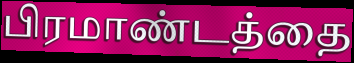
பிரமாண்டத்தை